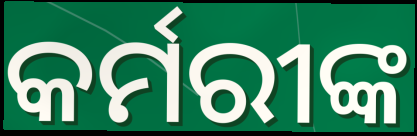
କର୍ମରୀଙ୍କ